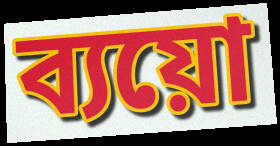
ব্যয়ো